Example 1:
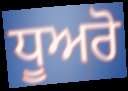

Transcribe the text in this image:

ਧੂਅਰੋ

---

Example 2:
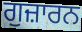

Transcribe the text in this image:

ਗੁਜ਼ਾਰਨ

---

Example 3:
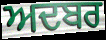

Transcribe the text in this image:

ਅਦਬਰ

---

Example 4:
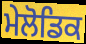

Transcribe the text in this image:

ਮੇਲੋਡਿਕ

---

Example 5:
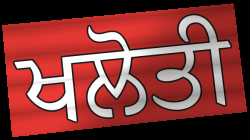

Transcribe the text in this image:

ਖਲੋਤੀ